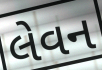
લેવન